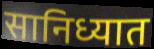
सानिध्यात